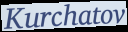
Kurchatov